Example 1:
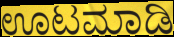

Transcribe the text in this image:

ಊಟಮಾಡಿ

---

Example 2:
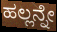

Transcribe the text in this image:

ಹಲ್ಲನ್ನೇ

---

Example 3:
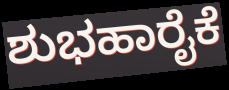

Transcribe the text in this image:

ಶುಭಹಾರೈಕೆ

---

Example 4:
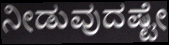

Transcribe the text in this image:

ನೀಡುವುದಷ್ಟೇ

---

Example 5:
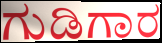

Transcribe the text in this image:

ಗುಡಿಗಾರ